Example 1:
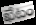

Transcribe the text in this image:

ఖేటం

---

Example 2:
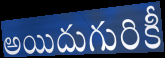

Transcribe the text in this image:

అయిదుగురికీ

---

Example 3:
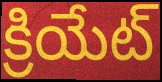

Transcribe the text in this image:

క్రియేట్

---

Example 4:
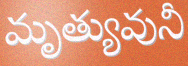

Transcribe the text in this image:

మృత్యువునీ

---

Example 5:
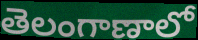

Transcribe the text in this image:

తెలంగాణాలో